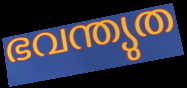
ഭവന്ത്യുത